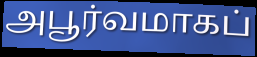
அபூர்வமாகப்